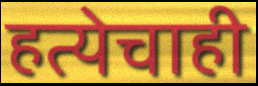
हत्येचाही